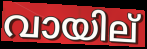
വായില്